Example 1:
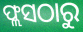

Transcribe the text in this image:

ଫ୍ଲସଠାରୁ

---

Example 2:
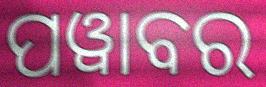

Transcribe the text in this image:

ପୱାବର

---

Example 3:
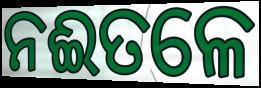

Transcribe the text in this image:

ନଈତଳେ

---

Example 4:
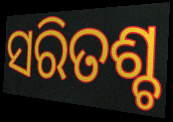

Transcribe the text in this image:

ସରିତଶ୍ଚ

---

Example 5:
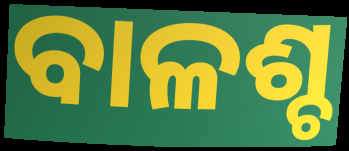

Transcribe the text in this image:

ବାଳଶ୍ଚ